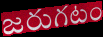
జరుగటం